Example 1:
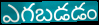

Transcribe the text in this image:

ఎగబడడం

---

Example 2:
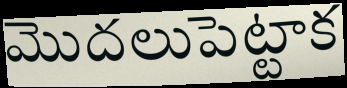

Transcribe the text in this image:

మొదలుపెట్టాక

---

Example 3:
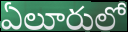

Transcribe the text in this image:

ఏలూరులో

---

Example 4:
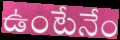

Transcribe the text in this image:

ఉంటేనేం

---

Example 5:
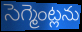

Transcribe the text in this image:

సెగ్మెంట్లను